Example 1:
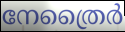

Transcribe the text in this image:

നേത്രൈർ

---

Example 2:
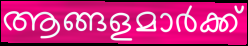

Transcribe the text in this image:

ആങ്ങളമാർക്ക്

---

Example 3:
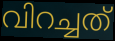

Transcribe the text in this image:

വിറച്ചത്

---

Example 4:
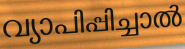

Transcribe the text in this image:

വ്യാപിപ്പിച്ചാൽ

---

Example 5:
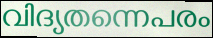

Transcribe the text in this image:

വിദ്യതന്നെപരം